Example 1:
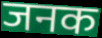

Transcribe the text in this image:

जनक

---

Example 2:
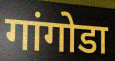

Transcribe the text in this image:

गांगोडा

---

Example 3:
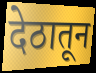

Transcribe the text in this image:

देठातून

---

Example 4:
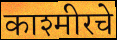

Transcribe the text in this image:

काश्मीरचे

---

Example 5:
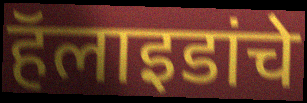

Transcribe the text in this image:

हॅलाइडांचे